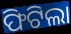
ଫିଟିଲା